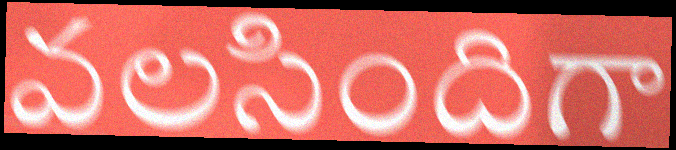
వలసిందిగా